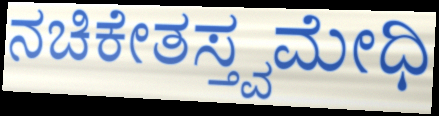
ನಚಿಕೇತಸ್ತ್ವಮೇಧಿ